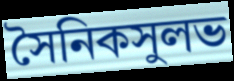
সৈনিকসুলভ